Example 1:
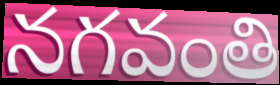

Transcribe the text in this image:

నగవంతి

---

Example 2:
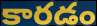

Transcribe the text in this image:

కారడం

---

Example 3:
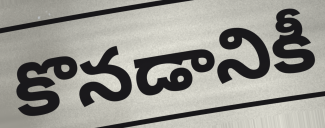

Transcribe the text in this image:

కొనడానికీ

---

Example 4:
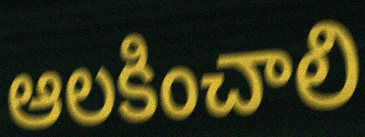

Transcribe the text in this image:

ఆలకించాలి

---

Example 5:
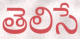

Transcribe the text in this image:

తెలిసే